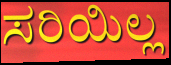
ಸರಿಯಿಲ್ಲ